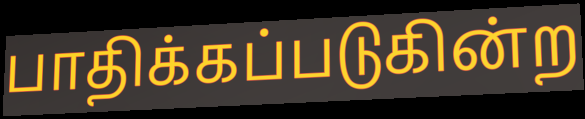
பாதிக்கப்படுகின்ற